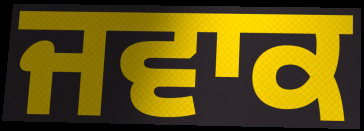
ਜਵਾਕ